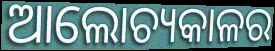
ଆଲୋଚ୍ୟକାଳର